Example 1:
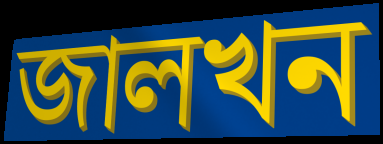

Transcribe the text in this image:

জালখন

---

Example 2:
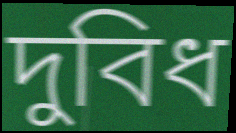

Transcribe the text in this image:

দুবিধ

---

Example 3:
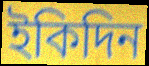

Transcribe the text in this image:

ইকিদিন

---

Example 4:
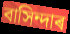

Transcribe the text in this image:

বাসিন্দাৰ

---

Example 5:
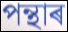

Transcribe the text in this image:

পন্থাৰ